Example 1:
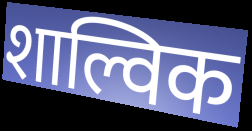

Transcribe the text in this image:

शाल्विक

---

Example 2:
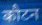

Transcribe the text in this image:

कौटन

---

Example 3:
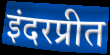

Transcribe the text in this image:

इंदरप्रीत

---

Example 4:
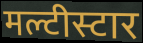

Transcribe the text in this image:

मल्टीस्टार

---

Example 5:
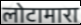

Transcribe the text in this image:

लोटामारा